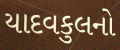
યાદવકુલનો